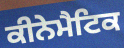
ਕੀਨੇਮੈਟਿਕ